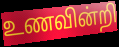
உணவின்றி